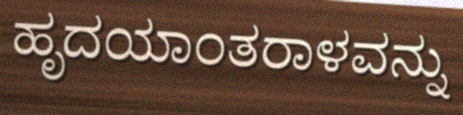
ಹೃದಯಾಂತರಾಳವನ್ನು